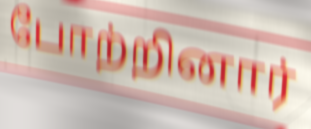
போற்றினார்